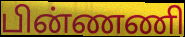
பின்ணணி